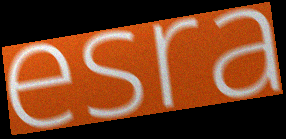
esra